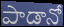
పాడానో